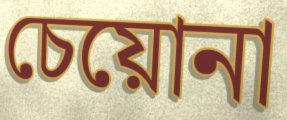
চেয়োনা